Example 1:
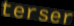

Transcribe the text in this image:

terser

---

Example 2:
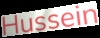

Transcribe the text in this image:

Hussein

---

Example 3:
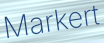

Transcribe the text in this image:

Markert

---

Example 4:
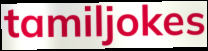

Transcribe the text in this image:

tamiljokes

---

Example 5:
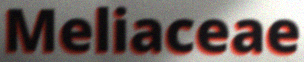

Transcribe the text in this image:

Meliaceae